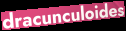
dracunculoides